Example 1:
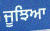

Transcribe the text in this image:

ਜੂਝਿਆ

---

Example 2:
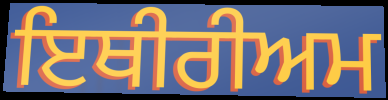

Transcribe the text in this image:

ਇਥੀਰੀਅਮ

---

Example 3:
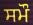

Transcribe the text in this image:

ਸਮੌ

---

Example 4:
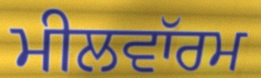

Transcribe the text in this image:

ਮੀਲਵਾੱਰਮ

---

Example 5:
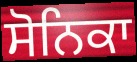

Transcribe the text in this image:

ਸੋਨਿਕਾ